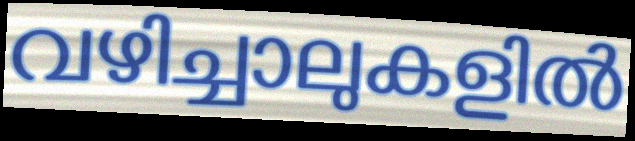
വഴിച്ചാലുകളിൽ